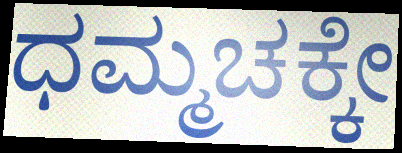
ಧಮ್ಮಚಕ್ಕೇ